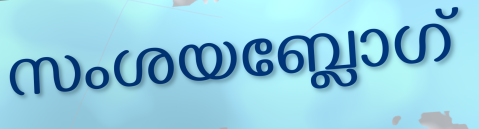
സംശയബ്ലോഗ്